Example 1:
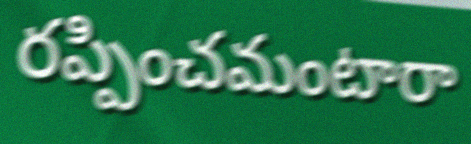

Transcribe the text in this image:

రప్పించమంటారా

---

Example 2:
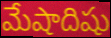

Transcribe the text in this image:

మేషాదిషు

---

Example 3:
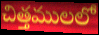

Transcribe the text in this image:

చిత్తములలో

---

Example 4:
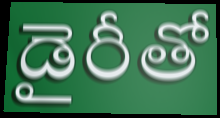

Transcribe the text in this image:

డైరీతో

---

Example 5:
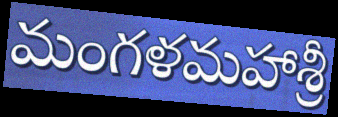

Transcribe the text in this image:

మంగళమహాశ్రీ